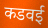
कडवई